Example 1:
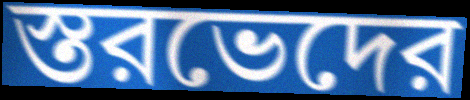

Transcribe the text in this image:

স্তরভেদের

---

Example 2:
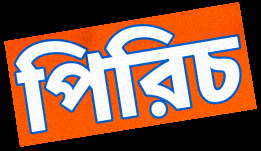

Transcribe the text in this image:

পিরিচ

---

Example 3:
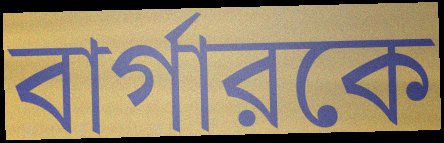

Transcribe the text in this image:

বার্গারকে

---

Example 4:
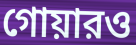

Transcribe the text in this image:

গোয়ারও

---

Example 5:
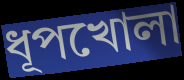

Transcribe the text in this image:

ধূপখোলা